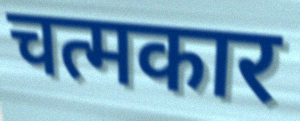
चत्मकार